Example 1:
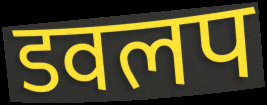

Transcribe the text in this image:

डवलप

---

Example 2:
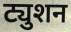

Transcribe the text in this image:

ट्युशन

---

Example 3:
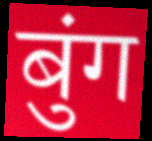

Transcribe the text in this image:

बुंग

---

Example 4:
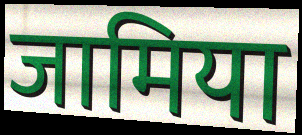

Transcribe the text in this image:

जामिया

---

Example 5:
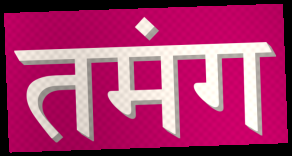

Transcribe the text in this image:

तमंग